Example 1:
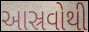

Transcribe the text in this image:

આસ્રવોથી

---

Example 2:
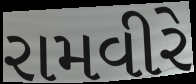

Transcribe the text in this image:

રામવીરે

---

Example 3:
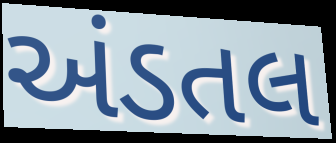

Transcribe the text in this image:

અંડતલ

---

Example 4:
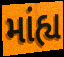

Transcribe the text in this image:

માંહ્ય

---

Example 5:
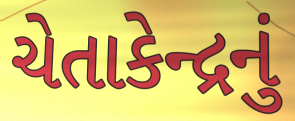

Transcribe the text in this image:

ચેતાકેન્દ્રનું